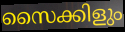
സൈക്കിളും